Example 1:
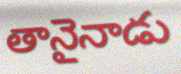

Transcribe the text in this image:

తానైనాడు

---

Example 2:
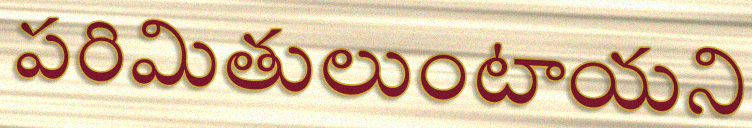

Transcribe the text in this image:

పరిమితులుంటాయని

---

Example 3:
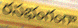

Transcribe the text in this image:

రసభంగంగా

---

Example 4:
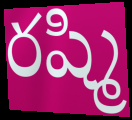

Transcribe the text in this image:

రష్మి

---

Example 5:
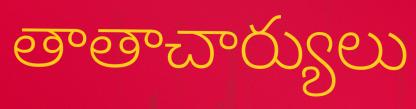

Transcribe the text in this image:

తాతాచార్యులు